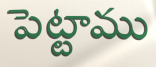
పెట్టాము